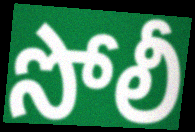
సోలీ